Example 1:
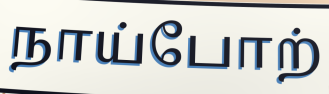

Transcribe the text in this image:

நாய்போற்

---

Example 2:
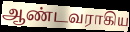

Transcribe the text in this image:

ஆண்டவராகிய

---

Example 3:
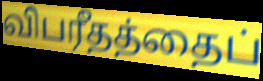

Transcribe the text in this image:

விபரீதத்தைப்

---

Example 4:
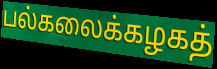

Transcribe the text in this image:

பல்கலைக்கழகத்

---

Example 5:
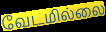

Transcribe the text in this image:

வேடமில்லை